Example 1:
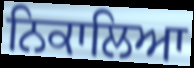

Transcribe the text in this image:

ਨਿਕਾਲਿਆ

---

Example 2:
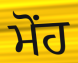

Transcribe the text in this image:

ਮੋਂਹ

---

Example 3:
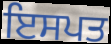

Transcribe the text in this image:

ਇਸਪਤ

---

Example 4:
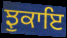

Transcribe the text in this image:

ਝੁਕਾਇ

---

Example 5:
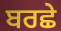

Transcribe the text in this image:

ਬਰਛੇ